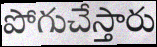
పోగుచేస్తారు